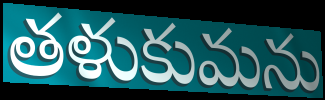
తళుకుమను